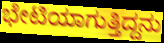
ಭೇಟಿಯಾಗುತ್ತಿದ್ದನು